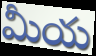
మీయ